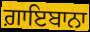
ਗ਼ਾਇਬਾਨਾ